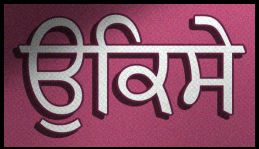
ਉਕਿਸੇ